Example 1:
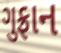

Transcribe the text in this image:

ગુફ્રાન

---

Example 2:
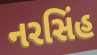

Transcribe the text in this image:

નરસિંહ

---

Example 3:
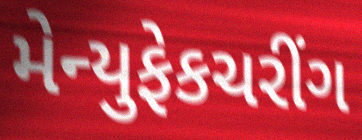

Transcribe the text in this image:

મેન્યુફેકચરીંગ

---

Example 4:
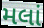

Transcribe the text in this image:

મલાં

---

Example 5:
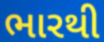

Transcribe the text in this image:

ભારથી